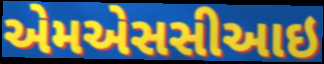
એમએસસીઆઇ